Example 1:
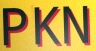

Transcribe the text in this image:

PKN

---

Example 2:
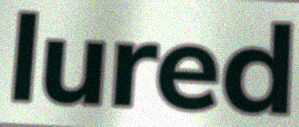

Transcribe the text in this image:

lured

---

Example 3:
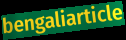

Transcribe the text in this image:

bengaliarticle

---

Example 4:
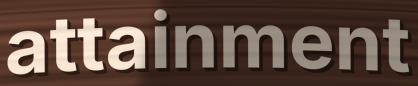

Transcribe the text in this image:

attainment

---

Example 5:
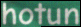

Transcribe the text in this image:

hotun